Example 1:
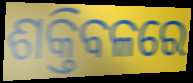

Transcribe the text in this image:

ଶକ୍ତିବଳରେ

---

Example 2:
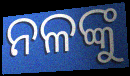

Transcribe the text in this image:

ନଳଙ୍କୁ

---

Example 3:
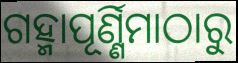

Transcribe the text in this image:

ଗହ୍ମାପୂର୍ଣ୍ଣିମାଠାରୁ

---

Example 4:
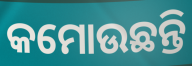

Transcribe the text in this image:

କମୋଉଛନ୍ତି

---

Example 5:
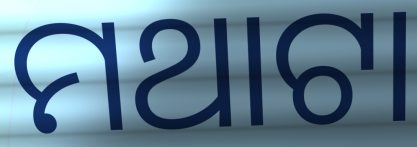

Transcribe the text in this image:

ମଥାଟା